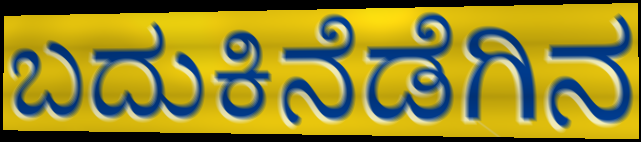
ಬದುಕಿನೆಡೆಗಿನ